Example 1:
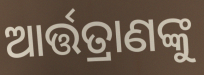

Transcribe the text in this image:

ଆର୍ତ୍ତତ୍ରାଣଙ୍କୁ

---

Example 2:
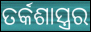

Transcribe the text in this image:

ତର୍କଶାସ୍ତ୍ରର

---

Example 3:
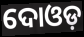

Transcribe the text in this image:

ଦୋଓଡ଼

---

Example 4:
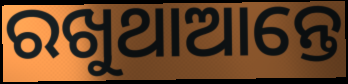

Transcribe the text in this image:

ରଖୁଥାଆନ୍ତେ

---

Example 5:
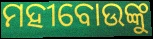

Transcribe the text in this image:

ମହୀବୋଉଙ୍କୁ